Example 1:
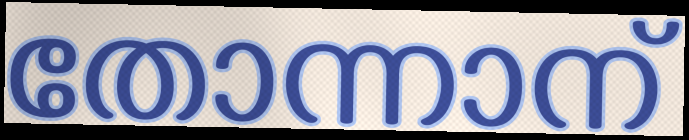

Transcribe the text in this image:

തോന്നാന്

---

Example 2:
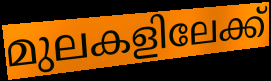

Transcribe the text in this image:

മുലകളിലേക്ക്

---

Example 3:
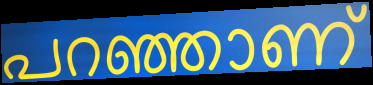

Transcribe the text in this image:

പറഞ്ഞാണ്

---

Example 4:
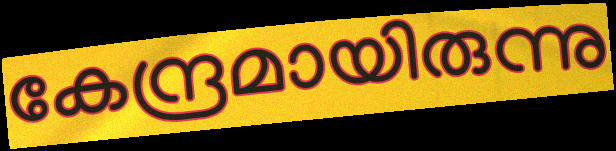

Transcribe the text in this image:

കേന്ദ്രമായിരുന്നു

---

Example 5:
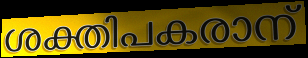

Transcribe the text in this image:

ശക്തിപകരാന്